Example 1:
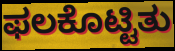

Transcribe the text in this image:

ಫಲಕೊಟ್ಟಿತು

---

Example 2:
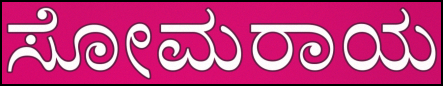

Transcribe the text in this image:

ಸೋಮರಾಯ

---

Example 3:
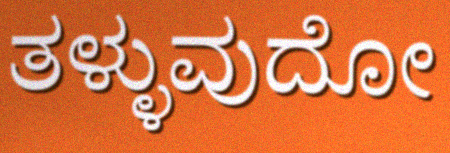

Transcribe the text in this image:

ತಳ್ಳುವುದೋ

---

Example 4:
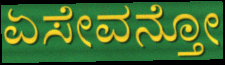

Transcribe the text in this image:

ಏಸೇವನ್ತೋ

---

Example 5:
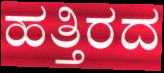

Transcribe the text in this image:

ಹತ್ತಿರದ